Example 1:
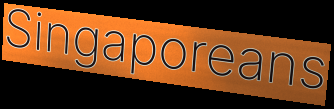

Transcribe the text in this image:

Singaporeans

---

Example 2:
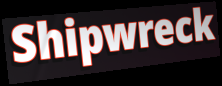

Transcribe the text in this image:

Shipwreck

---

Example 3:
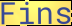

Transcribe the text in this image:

Fins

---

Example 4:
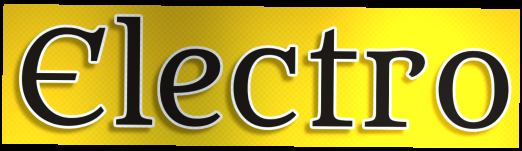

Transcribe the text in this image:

Electro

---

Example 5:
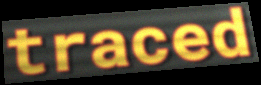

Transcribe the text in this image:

traced